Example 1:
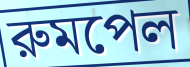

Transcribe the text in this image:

রুমপেল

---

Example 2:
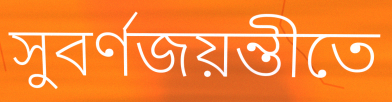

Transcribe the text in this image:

সুবর্ণজয়ন্তীতে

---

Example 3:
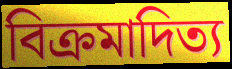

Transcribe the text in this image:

বিক্রমাদিত্য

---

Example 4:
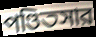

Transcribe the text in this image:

পণ্ডিতসার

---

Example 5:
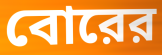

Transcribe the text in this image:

বোরের